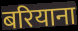
बरियाना